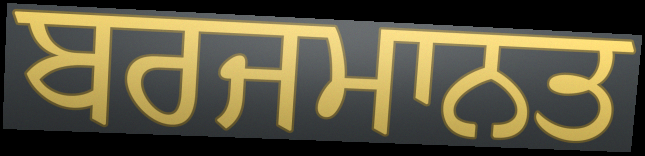
ਬਰਜਮਾਨਤ